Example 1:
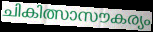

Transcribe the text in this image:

ചികിത്സാസൗകര്യം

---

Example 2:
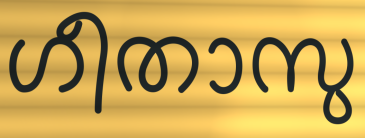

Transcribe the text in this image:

ഗീതാസു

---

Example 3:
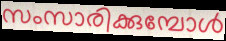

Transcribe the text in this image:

സംസാരിക്കുമ്പോൾ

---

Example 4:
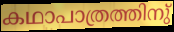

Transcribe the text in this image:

കഥാപാത്രത്തിനു്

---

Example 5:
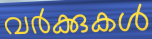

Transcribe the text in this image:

വർക്കുകൾ